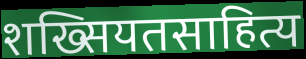
शख्सियतसाहित्य